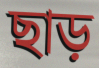
ছাড়